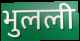
भुलली